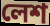
লেশ